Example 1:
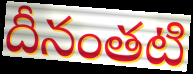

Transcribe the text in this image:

దీనంతటి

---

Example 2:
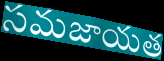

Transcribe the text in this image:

సమజాయత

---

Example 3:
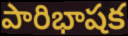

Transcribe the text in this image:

పారిభాషక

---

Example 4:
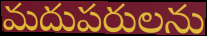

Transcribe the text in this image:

మదుపరులను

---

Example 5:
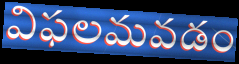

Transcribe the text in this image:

విఫలమవడం